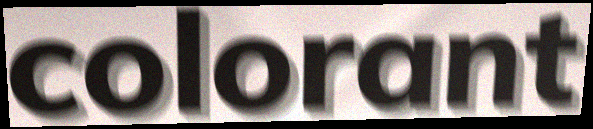
colorant